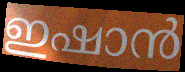
ഇഷാൻ